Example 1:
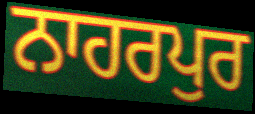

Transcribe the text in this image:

ਨਾਹਰਪੁਰ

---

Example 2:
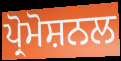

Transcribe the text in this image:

ਪ੍ਰੋਮੋਸ਼ਨਲ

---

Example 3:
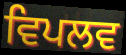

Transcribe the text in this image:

ਵਿਪਲਵ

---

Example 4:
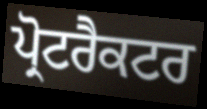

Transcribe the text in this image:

ਪ੍ਰੋਟਰੈਕਟਰ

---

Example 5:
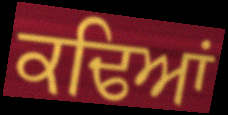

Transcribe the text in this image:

ਕਢਿਆਂ